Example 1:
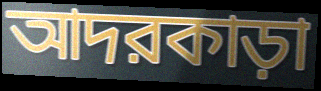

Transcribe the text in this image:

আদরকাড়া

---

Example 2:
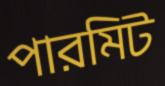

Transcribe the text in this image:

পারমিট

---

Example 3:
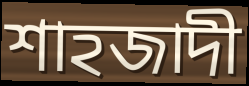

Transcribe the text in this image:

শাহজাদী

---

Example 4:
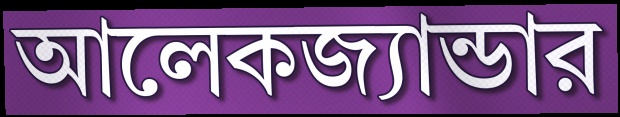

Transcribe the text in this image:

আলেকজ্যান্ডার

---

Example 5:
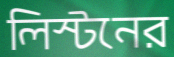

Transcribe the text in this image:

লিস্টনের